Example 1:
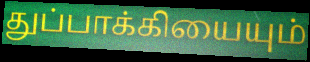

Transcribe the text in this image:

துப்பாக்கியையும்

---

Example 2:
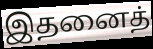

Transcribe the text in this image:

இதனைத்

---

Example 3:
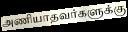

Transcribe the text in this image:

அணியாதவர்களுக்கு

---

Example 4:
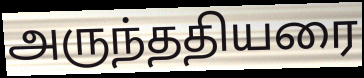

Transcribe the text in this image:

அருந்ததியரை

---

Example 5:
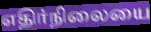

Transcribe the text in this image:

எதிர்நிலையை